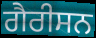
ਗੈਰੀਸਨ